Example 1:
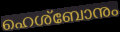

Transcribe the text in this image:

ഹെശ്ബോനും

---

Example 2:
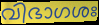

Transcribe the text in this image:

വിഭാഗശഃ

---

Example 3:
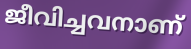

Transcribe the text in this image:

ജീവിച്ചവനാണ്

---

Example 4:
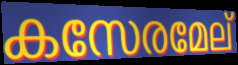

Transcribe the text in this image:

കസേരമേല്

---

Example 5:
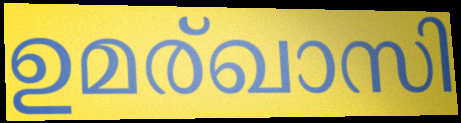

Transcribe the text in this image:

ഉമര്ഖാസി